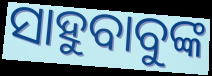
ସାହୁବାବୁଙ୍କ